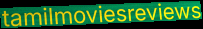
tamilmoviesreviews